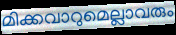
മിക്കവാറുമെല്ലാവരും